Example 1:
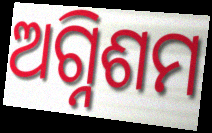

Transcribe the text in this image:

ଅଗ୍ନିଶମ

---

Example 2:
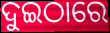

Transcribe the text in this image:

ଦୁଇଠାରେ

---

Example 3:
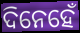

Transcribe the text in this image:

ଦିନେହେଁ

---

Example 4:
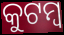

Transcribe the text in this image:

କୁଟମ୍ୱ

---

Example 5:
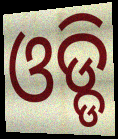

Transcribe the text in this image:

ଓଡ୍ଡି